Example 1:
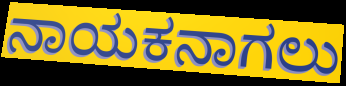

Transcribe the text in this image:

ನಾಯಕನಾಗಲು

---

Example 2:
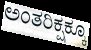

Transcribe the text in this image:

ಅಂತರಿಕ್ಷಕ್ಕೂ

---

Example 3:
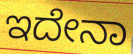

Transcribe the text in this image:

ಇದೇನಾ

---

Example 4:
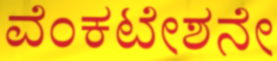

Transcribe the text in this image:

ವೆಂಕಟೇಶನೇ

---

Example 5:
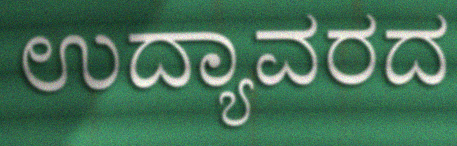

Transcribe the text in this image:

ಉದ್ಯಾವರದ